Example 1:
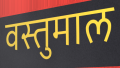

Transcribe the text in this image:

वस्तुमाल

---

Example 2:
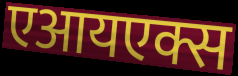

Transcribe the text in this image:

एआयएक्स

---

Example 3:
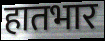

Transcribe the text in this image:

हातभार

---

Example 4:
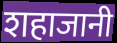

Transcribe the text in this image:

शहाजानी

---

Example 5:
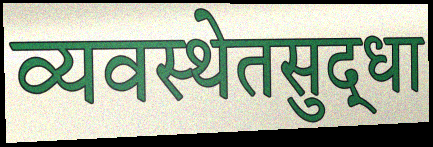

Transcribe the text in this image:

व्यवस्थेतसुद्धा